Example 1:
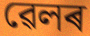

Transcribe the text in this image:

ৱেলৰ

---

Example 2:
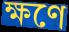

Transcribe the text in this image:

ক্ষণে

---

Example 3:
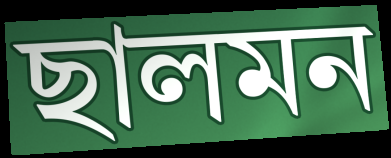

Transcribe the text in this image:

ছালমন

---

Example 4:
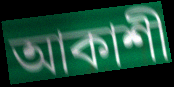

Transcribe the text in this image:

আকাশী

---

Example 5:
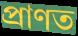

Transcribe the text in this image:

প্ৰাণত